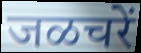
जळचरें